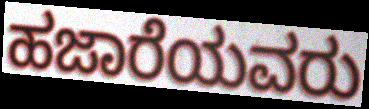
ಹಜಾರೆಯವರು